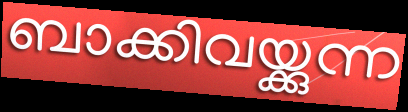
ബാക്കിവയ്ക്കുന്ന